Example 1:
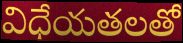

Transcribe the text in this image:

విధేయతలతో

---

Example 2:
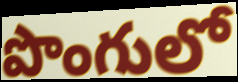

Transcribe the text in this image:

పొంగులో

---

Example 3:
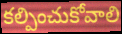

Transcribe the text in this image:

కల్పించుకోవాలి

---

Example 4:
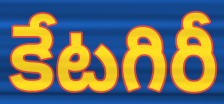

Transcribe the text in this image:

కేటగిరీ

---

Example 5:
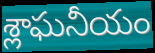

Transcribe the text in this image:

శ్లాఘనీయం